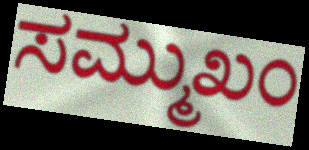
ಸಮ್ಮುಖಂ